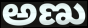
అణు